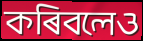
কৰিবলেও